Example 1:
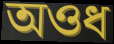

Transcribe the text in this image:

অওধ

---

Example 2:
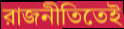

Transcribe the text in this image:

রাজনীতিতেই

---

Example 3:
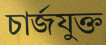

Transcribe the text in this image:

চার্জযুক্ত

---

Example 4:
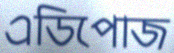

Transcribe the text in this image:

এডিপোজ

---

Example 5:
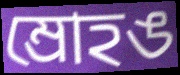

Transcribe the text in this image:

ম্রোহঙ